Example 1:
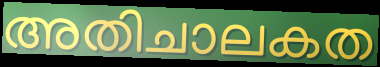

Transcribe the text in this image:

അതിചാലകത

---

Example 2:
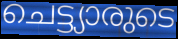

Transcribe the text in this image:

ചെട്ട്യാരുടെ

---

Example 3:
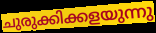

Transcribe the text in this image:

ചുരുക്കിക്കളയുന്നു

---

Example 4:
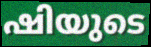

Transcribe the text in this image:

ഷിയുടെ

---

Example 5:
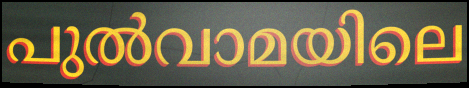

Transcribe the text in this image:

പുൽവാമയിലെ